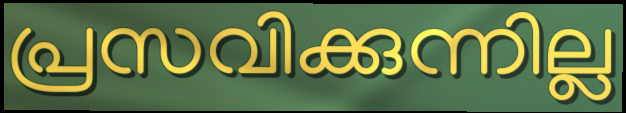
പ്രസവിക്കുന്നില്ല